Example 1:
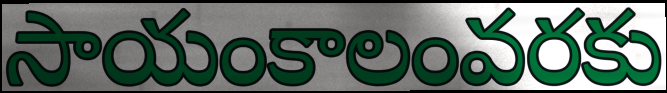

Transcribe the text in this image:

సాయంకాలంవరకు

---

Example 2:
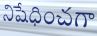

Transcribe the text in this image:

నిషేధించగా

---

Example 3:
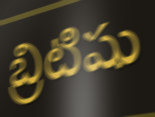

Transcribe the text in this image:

బ్రిటిషు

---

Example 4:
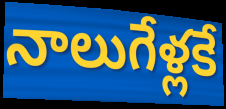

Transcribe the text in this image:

నాలుగేళ్లకే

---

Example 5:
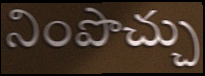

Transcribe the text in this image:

నింపొచ్చు